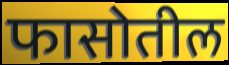
फासोतील